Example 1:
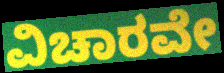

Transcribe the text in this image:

ವಿಚಾರವೇ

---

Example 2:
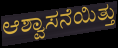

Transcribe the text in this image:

ಆಶ್ವಾಸನೆಯಿತ್ತು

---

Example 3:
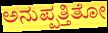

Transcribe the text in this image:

ಅನುಪ್ಪತ್ತಿತೋ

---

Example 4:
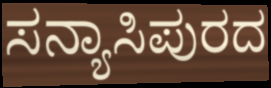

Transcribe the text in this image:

ಸನ್ಯಾಸಿಪುರದ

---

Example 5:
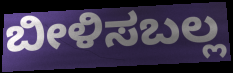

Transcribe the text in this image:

ಬೀಳಿಸಬಲ್ಲ